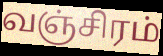
வஞ்சிரம்